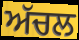
ਅੱਚਲ